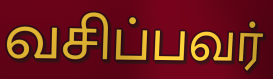
வசிப்பவர்